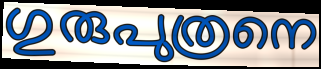
ഗുരുപുത്രനെ